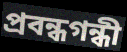
প্রবন্ধগন্ধী